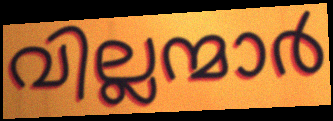
വില്ലന്മാർ